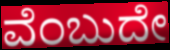
ವೆಂಬುದೇ